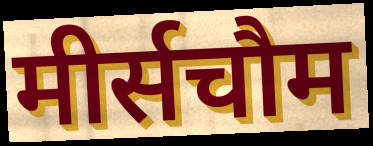
मीर्सचौम